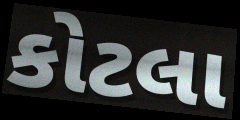
કોટલા